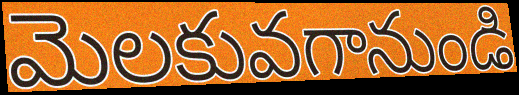
మెలకువగానుండి